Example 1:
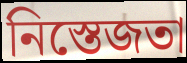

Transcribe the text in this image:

নিস্তেজতা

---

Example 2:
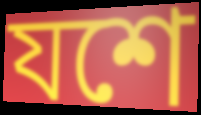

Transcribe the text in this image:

যশে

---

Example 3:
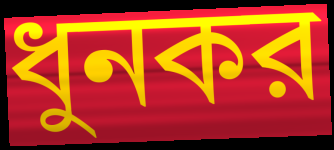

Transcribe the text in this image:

ধুনকর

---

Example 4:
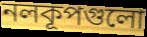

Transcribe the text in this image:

নলকূপগুলো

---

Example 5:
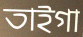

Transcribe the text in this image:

তাইগা